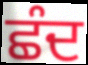
ਛੰਦ